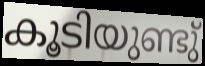
കൂടിയുണ്ടു്